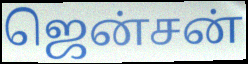
ஜென்சன்